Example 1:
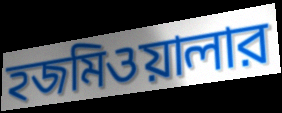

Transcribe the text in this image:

হজমিওয়ালার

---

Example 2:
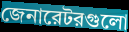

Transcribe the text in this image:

জেনারেটরগুলো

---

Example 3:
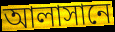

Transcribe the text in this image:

আলাসানে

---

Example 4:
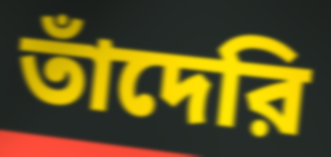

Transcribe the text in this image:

তাঁদেরি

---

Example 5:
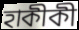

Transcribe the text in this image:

হাকীকী